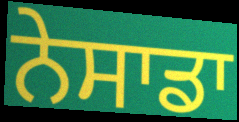
ਨੇਸਾਡਾ